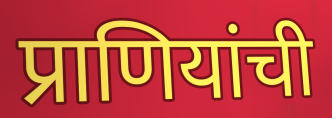
प्राणियांची